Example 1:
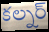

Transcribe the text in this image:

కల్నర్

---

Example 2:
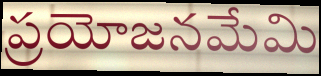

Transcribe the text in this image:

ప్రయోజనమేమి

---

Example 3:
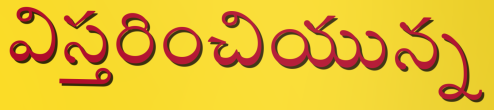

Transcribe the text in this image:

విస్తరించియున్న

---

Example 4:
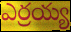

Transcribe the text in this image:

ఎర్రయ్య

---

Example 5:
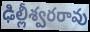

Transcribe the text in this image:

ఢిల్లీశ్వరరావు